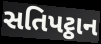
સતિપટ્ઠાન